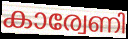
കാര്വേണി